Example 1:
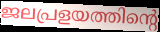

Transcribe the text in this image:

ജലപ്രളയത്തിന്റെ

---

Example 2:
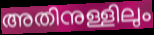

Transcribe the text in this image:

അതിനുള്ളിലും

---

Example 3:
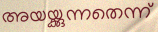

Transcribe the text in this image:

അയയ്ക്കുന്നതെന്ന്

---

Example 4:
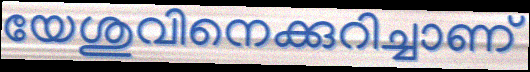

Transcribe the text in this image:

യേശുവിനെക്കുറിച്ചാണ്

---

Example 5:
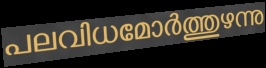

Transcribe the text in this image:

പലവിധമോർത്തുഴന്നു